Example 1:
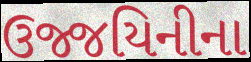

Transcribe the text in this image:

ઉજ્જયિનીના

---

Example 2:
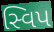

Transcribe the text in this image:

સ્વિપ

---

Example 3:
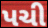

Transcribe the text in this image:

પચી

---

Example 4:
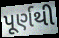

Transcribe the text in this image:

પૂર્ણથી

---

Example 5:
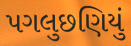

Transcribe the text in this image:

પગલુછણિયું